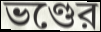
ভণ্ডের